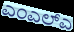
ಎಂಎಲ್ಎ